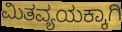
ಮಿತವ್ಯಯಕ್ಕಾಗಿ